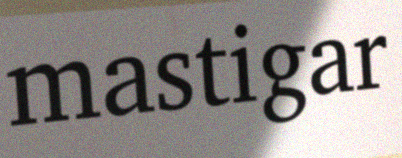
mastigar